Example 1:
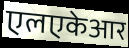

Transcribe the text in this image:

एलएकेआर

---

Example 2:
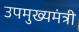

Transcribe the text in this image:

उपमुख्यमंत्री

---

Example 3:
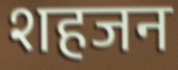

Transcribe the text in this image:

शहजन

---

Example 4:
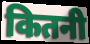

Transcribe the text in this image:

कितनी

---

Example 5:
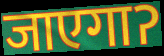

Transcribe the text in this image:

जाएगाॽ